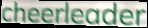
cheerleader